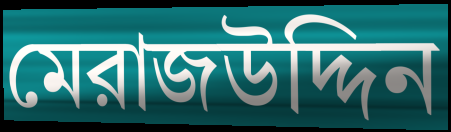
মেরাজউদ্দিন